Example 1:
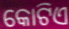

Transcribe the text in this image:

କୋଟିଏ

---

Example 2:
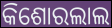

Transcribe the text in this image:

କିଶୋରଲାଲ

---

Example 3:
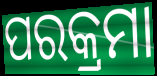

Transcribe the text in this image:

ପରକ୍ରମା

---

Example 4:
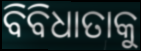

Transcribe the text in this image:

ବିବିଧାତାକୁ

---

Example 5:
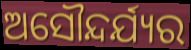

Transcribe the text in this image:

ଅସୌନ୍ଦର୍ଯ୍ୟର